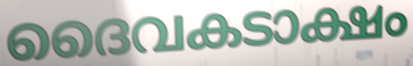
ദൈവകടാക്ഷം